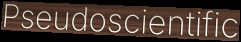
Pseudoscientific